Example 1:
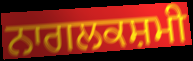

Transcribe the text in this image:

ਨਾਗਲਕਸ਼ਮੀ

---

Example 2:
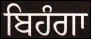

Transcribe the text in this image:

ਬਿਹੰਗਾ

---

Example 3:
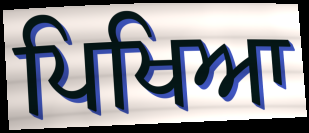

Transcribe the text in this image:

ਪਿਖਿਆ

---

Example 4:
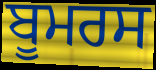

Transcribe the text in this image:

ਬੂਮਰਸ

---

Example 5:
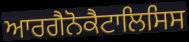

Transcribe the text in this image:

ਆਰਗੈਨੋਕੈਟਾਲਿਸਿਸ